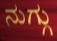
ನುಗ್ಗು